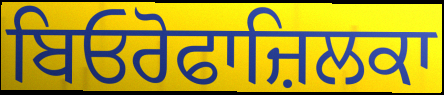
ਬਿਓਰੋਫਾਜ਼ਿਲਕਾ